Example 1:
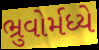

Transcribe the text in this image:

ભ્રુવોર્મધ્યે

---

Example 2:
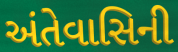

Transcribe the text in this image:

અંતેવાસિની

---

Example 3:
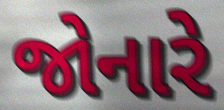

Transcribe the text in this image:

જોનારે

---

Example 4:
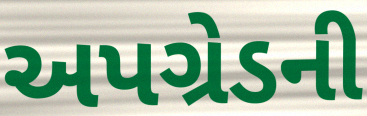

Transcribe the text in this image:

અપગ્રેડની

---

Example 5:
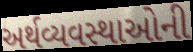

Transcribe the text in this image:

અર્થવ્યવસ્થાઓની